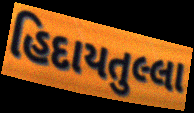
હિદાયતુલ્લા